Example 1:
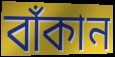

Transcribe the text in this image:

বাঁকান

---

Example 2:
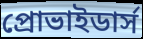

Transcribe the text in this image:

প্রোভাইডার্স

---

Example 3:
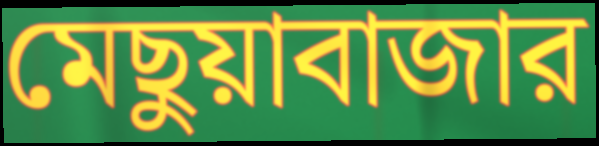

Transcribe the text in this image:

মেছুয়াবাজার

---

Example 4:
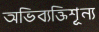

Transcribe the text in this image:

অভিব্যক্তিশূন্য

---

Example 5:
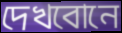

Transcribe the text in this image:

দেখবোনে